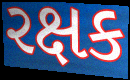
રક્ષક